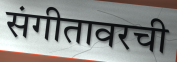
संगीतावरची